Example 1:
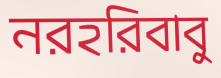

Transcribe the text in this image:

নরহরিবাবু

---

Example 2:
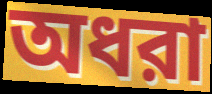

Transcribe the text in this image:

অধরা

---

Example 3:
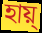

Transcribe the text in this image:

হায়্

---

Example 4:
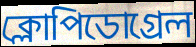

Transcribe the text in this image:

ক্লোপিডোগ্রেল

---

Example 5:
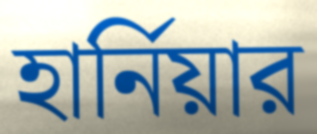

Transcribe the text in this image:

হার্নিয়ার